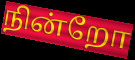
நின்றோ